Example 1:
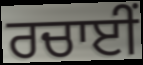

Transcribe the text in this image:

ਰਚਾਈਂ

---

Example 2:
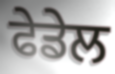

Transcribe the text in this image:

ਫੇਡੇਲ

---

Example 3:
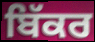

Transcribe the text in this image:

ਬਿੱਕਰ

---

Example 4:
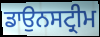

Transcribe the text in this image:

ਡਾਉਨਸਟ੍ਰੀਮ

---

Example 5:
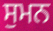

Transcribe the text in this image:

ਸੁਮਨ